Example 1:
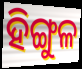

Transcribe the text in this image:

ହିଙ୍ଗୁଳ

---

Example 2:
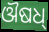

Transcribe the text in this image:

ଔଷଧ୍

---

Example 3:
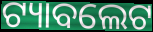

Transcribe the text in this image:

ଟ୍ୟାବଲେଟ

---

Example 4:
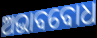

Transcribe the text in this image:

ଅଭାବବୋଧ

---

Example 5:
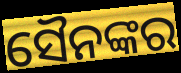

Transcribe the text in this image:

ସୈନଙ୍କର